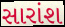
સારાંશ